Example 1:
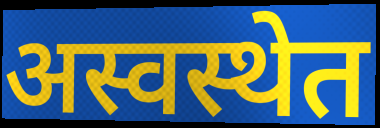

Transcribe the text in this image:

अस्वस्थेत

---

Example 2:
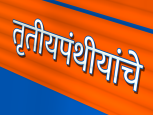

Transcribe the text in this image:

तृतीयपंथीयांचे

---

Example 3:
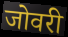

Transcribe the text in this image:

जोवरी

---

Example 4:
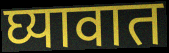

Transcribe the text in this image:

घ्यावात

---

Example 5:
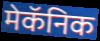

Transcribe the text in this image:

मेकॅनिक